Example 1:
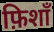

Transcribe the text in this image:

फ़िशाँ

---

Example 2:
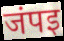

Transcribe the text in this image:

जंपइ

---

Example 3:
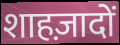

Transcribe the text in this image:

शाहज़ादों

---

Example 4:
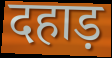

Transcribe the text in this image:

दहाड़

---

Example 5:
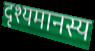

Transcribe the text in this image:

दृश्यमानस्य